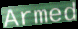
Armed